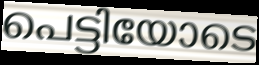
പെട്ടിയോടെ